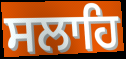
ਸਲਾਹਿ